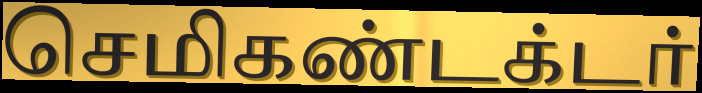
செமிகண்டக்டர்